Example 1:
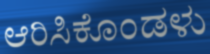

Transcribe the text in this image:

ಆರಿಸಿಕೊಂಡಳು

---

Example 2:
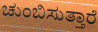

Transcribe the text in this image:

ಚುಂಬಿಸುತ್ತಾರೆ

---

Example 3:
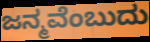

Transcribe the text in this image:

ಜನ್ಮವೆಂಬುದು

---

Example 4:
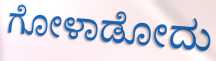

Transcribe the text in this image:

ಗೋಳಾಡೋದು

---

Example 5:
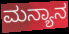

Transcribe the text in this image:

ಮನ್ಯಾನ